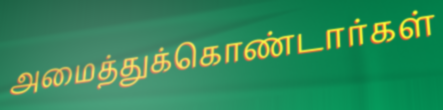
அமைத்துக்கொண்டார்கள்